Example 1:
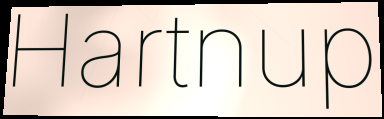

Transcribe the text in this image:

Hartnup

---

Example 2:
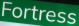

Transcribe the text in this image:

Fortress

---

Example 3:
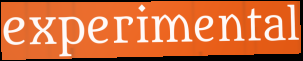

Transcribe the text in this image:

experimental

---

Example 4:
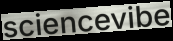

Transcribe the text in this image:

sciencevibe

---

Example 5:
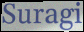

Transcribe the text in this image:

Suragi